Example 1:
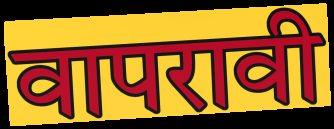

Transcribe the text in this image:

वापरावी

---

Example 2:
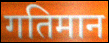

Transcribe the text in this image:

गतिमान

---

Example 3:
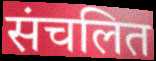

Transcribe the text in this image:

संचलित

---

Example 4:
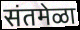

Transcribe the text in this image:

संतमेळा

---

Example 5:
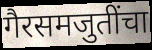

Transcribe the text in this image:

गैरसमजुतींचा